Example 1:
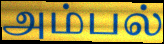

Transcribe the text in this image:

அம்பல்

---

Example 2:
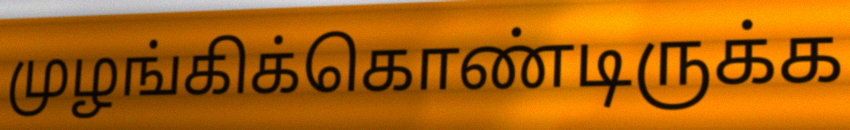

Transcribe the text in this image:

முழங்கிக்கொண்டிருக்க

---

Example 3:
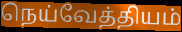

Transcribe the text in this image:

நெய்வேத்தியம்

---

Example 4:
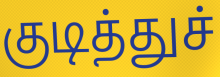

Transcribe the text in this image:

குடித்துச்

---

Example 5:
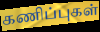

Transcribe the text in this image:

கணிப்புகள்